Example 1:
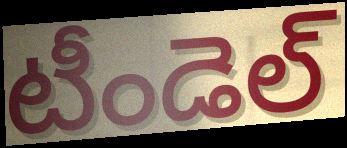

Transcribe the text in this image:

టీండెల్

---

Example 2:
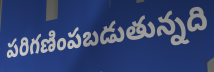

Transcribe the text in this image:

పరిగణింపబడుతున్నది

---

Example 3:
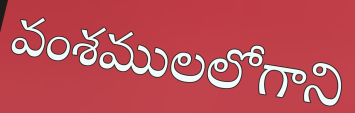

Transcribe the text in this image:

వంశములలోగాని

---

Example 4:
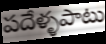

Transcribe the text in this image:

పదేళ్ళపాటు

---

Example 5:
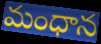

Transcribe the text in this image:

మంధాన